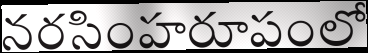
నరసింహరూపంలో